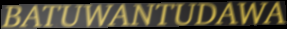
BATUWANTUDAWA